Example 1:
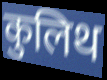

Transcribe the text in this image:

कुलिथ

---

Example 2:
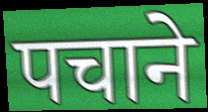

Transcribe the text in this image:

पचाने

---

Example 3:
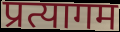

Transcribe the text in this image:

प्रत्यागम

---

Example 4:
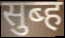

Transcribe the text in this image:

सुब्ह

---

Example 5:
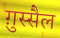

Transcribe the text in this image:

ग़ुस्सैल